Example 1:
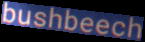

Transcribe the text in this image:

bushbeech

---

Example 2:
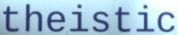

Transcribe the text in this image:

theistic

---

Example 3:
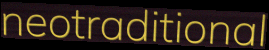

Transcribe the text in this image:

neotraditional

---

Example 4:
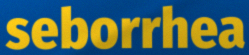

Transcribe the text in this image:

seborrhea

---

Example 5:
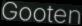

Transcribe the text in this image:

Gooten